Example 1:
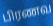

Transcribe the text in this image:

பிரணவ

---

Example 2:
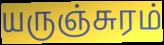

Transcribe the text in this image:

யருஞ்சுரம்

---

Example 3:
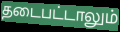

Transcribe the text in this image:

தடைபட்டாலும்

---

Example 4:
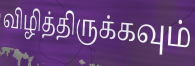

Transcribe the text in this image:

விழித்திருக்கவும்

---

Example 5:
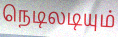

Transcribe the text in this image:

நெடிலடியும்